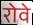
रोवे